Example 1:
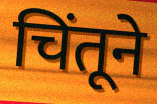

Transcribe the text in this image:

चिंतूने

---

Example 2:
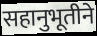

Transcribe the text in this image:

सहानुभूतीने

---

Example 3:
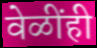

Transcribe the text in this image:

वेळींही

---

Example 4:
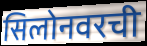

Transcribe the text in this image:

सिलोनवरची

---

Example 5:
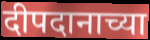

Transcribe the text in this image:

दीपदानाच्या